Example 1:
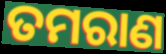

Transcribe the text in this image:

ତମରାଣ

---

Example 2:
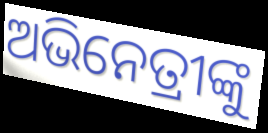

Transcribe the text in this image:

ଅଭିନେତ୍ରୀଙ୍କୁ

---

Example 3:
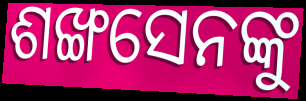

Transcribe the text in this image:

ଶଙ୍ଖସେନଙ୍କୁ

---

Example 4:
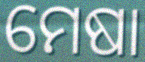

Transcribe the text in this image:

ମେଷା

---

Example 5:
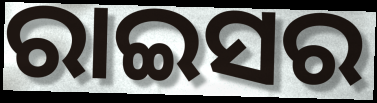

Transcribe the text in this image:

ରାଇସର